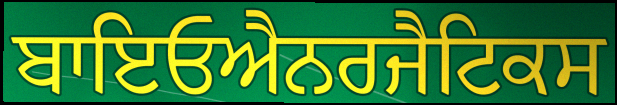
ਬਾਇਓਐਨਰਜੈਟਿਕਸ